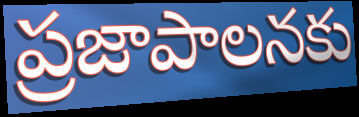
ప్రజాపాలనకు